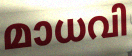
മാധവി